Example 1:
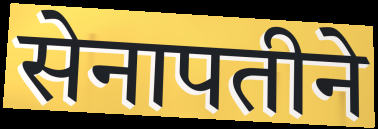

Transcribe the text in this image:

सेनापतीने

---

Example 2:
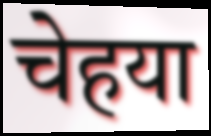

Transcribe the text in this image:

चेहया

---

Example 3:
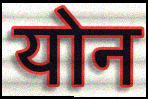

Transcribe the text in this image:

योन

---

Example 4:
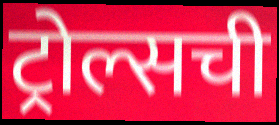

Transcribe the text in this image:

ट्रोल्सची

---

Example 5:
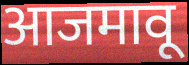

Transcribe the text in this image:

आजमावू